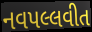
નવપલ્લવીત